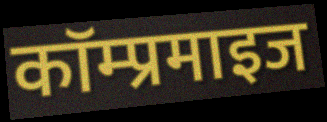
कॉम्प्रमाइज